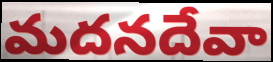
మదనదేవా